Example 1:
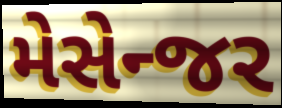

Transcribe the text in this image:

મેસેન્જર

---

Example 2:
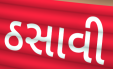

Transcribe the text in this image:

ઠસાવી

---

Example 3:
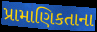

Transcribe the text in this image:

પ્રામાણિકતાના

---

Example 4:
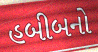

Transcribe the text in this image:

હબીબનો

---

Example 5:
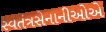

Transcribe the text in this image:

સ્વતંત્રસેનાનીઓએ